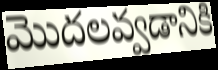
మొదలవ్వడానికి